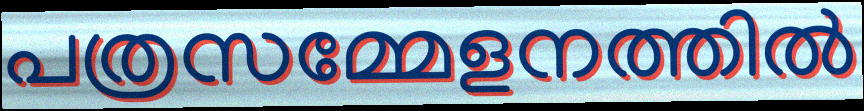
പത്രസമ്മേളനത്തിൽ